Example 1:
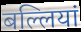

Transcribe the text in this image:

बल्लियां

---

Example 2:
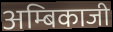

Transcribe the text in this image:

अम्बिकाजी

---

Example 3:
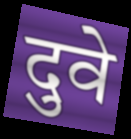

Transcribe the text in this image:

दुवे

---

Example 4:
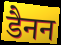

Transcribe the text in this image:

डैनन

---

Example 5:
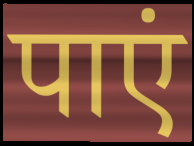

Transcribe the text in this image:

पाएं